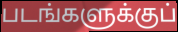
படங்களுக்குப்